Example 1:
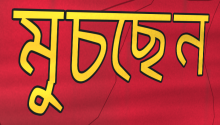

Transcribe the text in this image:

মুচছেন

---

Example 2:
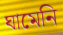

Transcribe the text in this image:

ঘামেনি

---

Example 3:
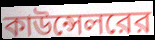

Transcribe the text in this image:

কাউন্সেলরের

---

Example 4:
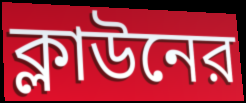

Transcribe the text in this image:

ক্লাউনের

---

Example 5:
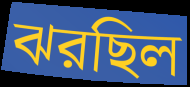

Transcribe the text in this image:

ঝরছিল